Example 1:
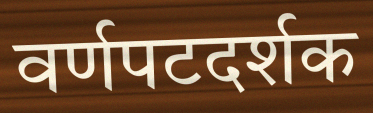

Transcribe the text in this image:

वर्णपटदर्शक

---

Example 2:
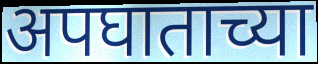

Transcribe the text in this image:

अपघाताच्या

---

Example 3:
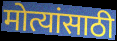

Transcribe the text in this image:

मोत्यांसाठी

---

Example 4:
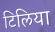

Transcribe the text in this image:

टिलिया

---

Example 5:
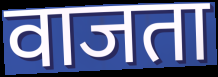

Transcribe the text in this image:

वाजता